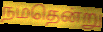
நமதென்று